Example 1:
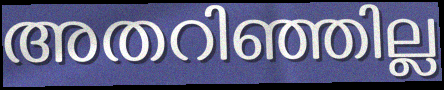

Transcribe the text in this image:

അതറിഞ്ഞില്ല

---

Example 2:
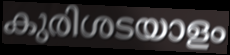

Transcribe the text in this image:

കുരിശടയാളം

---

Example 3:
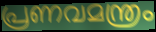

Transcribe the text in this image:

പ്രണവമന്ത്രം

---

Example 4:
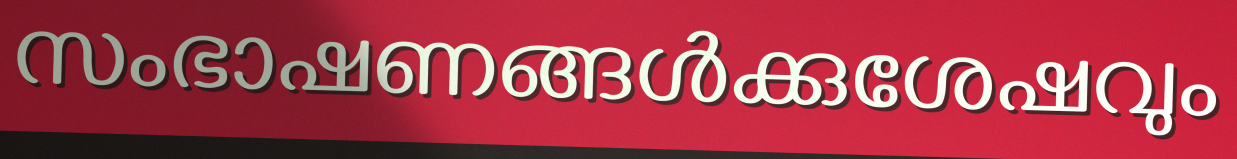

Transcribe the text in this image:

സംഭാഷണങ്ങൾക്കുശേഷവും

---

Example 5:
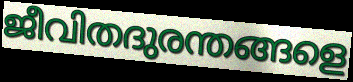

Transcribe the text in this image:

ജീവിതദുരന്തങ്ങളെ